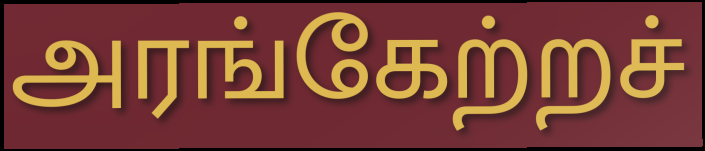
அரங்கேற்றச்